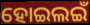
ହୋଇଲଇଁ